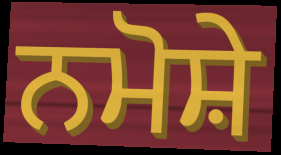
ਨਮੋਸ਼ੇ